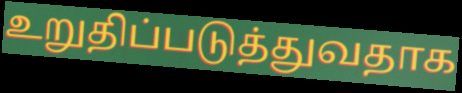
உறுதிப்படுத்துவதாக